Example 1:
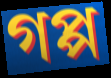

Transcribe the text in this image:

গপ্প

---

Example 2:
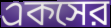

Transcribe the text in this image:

একসের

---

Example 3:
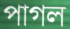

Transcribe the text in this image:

পাগল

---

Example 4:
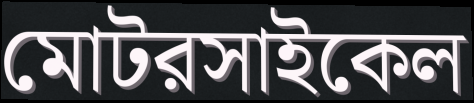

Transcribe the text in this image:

মোটরসাইকেল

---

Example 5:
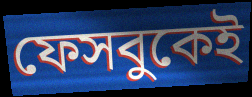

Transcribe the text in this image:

ফেসবুকেই